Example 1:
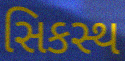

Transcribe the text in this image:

સિકસ્થ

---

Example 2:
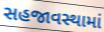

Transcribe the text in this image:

સહજાવસ્થામાં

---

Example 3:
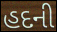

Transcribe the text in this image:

હદની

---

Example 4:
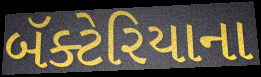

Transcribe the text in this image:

બૅક્ટેરિયાના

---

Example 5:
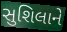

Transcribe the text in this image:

સુશિલાને